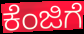
ಕೆಂಜಿಗೆ